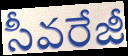
సీవరేజీ